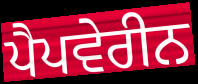
ਪੈਪਵੇਰੀਨ